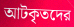
আটকৃতদের